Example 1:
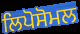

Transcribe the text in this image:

ਲਿਪੋਸੋਮਲ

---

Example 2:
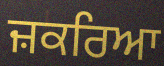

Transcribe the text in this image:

ਜ਼ਕਰਿਆ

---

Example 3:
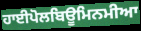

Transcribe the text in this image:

ਹਾਈਪੋਲਬਿਊਮਿਨਮੀਆ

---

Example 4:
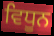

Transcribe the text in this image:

ਵਿਧੂਨ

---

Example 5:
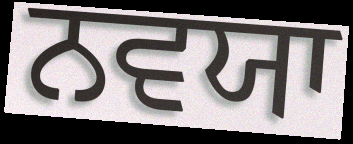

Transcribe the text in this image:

ਨਵਯਾ